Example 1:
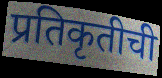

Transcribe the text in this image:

प्रतिकृतीची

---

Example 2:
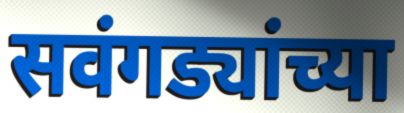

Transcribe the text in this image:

सवंगड्यांच्या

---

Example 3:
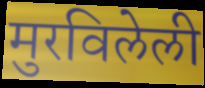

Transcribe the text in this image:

मुरविलेली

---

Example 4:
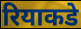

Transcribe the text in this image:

रियाकडे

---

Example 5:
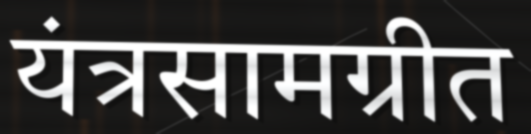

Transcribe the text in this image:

यंत्रसामग्रीत